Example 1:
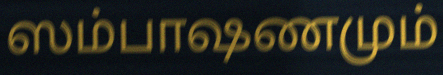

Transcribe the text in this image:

ஸம்பாஷணமும்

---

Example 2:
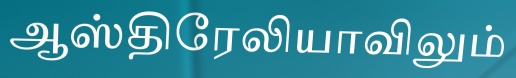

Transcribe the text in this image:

ஆஸ்திரேலியாவிலும்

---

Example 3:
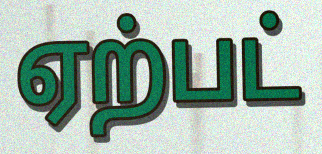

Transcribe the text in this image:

ஏற்பட்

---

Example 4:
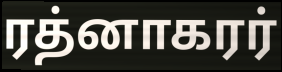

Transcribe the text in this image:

ரத்னாகரர்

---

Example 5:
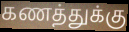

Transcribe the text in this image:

கணத்துக்கு